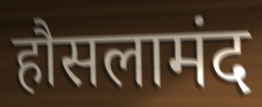
हौसलामंद